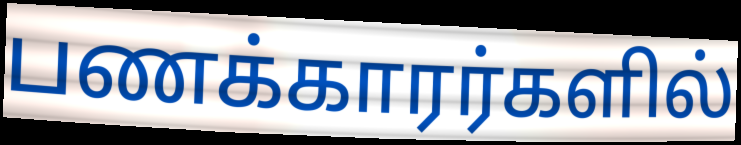
பணக்காரர்களில்